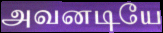
அவனடியே